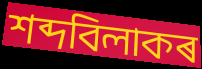
শব্দবিলাকৰ